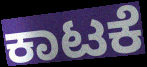
ಕಾಟಕೆ